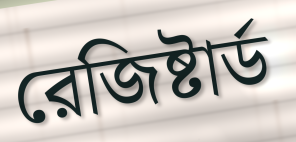
রেজিষ্টার্ড